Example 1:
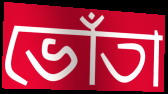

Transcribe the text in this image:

ভোঁতা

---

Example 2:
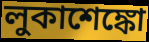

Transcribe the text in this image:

লুকাশেঙ্কো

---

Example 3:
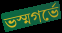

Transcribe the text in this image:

ভস্মগর্ভে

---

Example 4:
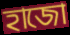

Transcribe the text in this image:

হাজো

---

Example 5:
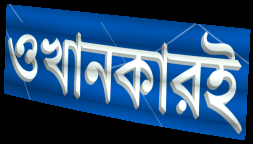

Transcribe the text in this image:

ওখানকারই